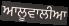
ਆਲੂਵਾਲੀਆ